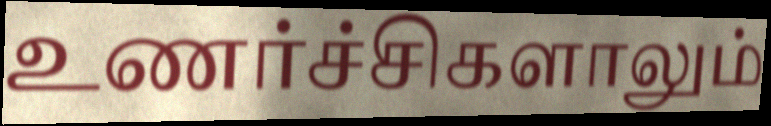
உணர்ச்சிகளாலும்